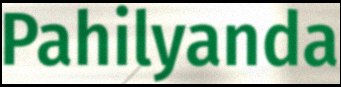
Pahilyanda